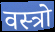
वस्त्रो